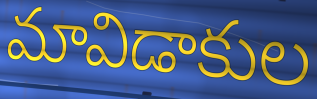
మావిడాకుల